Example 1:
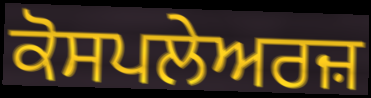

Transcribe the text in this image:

ਕੋਸਪਲੇਅਰਜ਼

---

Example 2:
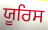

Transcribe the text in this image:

ਯੂਰਿਸ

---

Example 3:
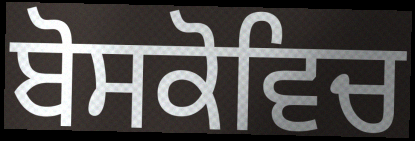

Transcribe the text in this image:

ਬੋਸਕੋਵਿਚ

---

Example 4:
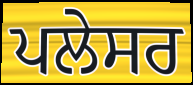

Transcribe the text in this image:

ਪਲੇਸਰ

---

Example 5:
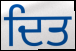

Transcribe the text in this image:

ਦਿਤ